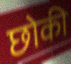
छोकी